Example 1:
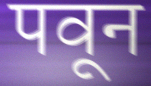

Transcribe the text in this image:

पवून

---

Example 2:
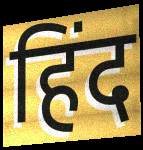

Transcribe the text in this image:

हिंद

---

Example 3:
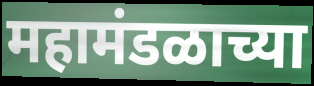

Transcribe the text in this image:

महामंडळाच्या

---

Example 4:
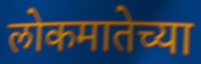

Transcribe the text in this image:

लोकमातेच्या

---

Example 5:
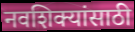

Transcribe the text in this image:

नवशिक्यांसाठी